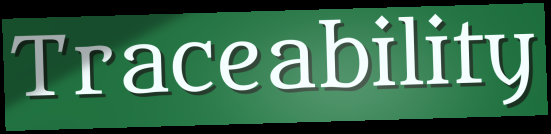
Traceability